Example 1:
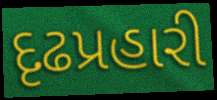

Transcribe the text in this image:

દૃઢપ્રહારી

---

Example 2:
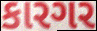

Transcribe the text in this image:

કારગર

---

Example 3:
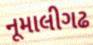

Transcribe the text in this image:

નૂમાલીગઢ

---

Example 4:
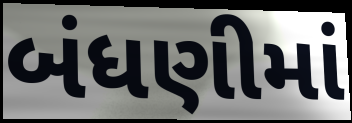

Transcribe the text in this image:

બંધણીમાં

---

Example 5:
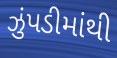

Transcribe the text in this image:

ઝુંપડીમાંથી